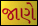
જાણે